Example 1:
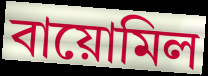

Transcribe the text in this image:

বায়োমিল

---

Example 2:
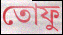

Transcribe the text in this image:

তোফু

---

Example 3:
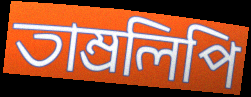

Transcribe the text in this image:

তাম্রলিপি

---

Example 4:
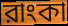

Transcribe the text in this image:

রাংকা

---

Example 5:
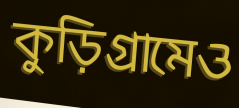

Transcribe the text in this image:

কুড়িগ্রামেও